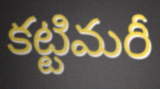
కట్టిమరీ